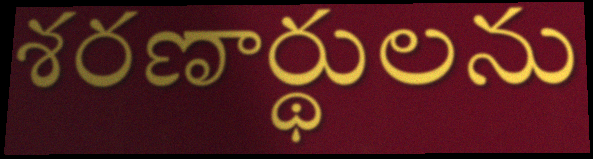
శరణార్థులను